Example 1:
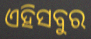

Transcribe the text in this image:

ଏହିସବୁର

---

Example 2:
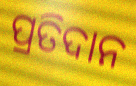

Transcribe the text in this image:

ପ୍ରତିଦାନ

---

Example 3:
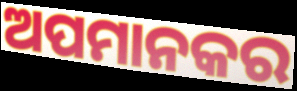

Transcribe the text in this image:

ଅପମାନକର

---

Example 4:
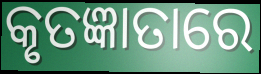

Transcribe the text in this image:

କୃତଜ୍ଞାତାରେ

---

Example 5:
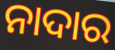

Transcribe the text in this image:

ନାଦାର